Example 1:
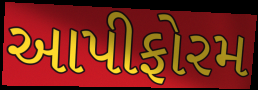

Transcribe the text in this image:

આપીફોરમ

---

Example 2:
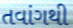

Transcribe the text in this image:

તવાંગથી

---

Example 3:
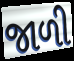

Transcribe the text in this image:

જાળી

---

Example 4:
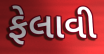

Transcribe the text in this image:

ફેલાવી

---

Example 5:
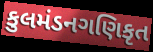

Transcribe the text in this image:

કુલમંડનગણિકૃત